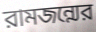
রামজন্মের